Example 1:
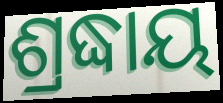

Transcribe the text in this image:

ଶ୍ରଦ୍ଧାୟ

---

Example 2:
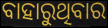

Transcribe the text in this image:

ବାହାରୁଥିବାର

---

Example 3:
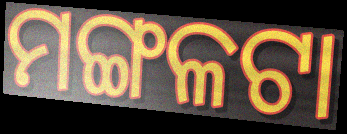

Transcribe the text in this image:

ମଙ୍ଗଳଟା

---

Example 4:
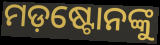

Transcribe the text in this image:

ମଡ଼ଷ୍ଟୋନଙ୍କୁ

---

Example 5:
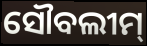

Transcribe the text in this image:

ସୌବଲୀମ୍